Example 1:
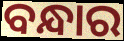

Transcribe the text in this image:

ବନ୍ଧାର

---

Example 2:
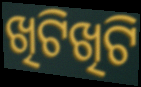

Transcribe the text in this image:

ଖିଟିଖିଟି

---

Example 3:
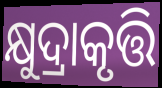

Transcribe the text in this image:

କ୍ଷୁଦ୍ରାକୃତ୍ତି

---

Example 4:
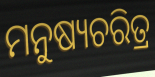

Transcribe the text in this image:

ମନୁଷ୍ୟଚରିତ୍ର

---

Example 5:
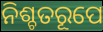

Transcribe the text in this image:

ନିଶ୍ଚତରୂପେ